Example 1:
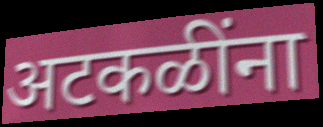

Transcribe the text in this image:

अटकळींना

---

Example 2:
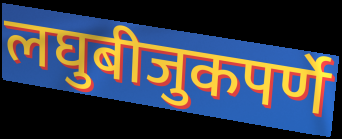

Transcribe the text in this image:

लघुबीजुकपर्णे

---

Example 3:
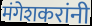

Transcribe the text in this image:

मंगेशकरांनी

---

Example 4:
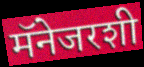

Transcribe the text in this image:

मॅनेजरशी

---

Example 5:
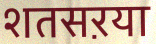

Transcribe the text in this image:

शतसऱया